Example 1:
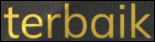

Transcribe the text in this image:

terbaik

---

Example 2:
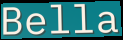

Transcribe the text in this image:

Bella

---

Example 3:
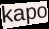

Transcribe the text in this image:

kapo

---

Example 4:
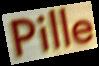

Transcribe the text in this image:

Pille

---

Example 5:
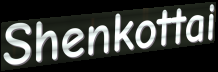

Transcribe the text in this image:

Shenkottai